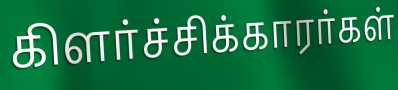
கிளர்ச்சிக்காரர்கள்